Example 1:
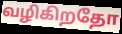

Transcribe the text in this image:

வழிகிறதோ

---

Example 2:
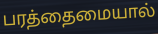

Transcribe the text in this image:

பரத்தைமையால்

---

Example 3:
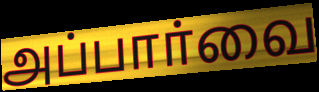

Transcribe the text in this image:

அப்பார்வை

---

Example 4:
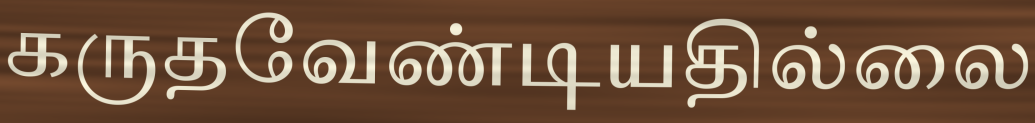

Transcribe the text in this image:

கருதவேண்டியதில்லை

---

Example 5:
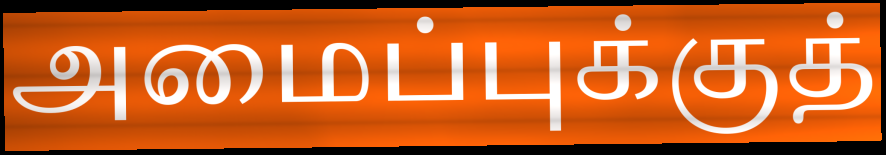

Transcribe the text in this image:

அமைப்புக்குத்